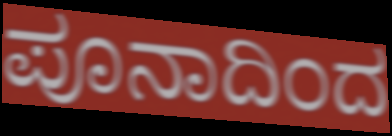
ಪೂನಾದಿಂದ